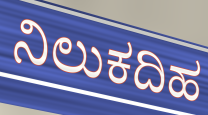
ನಿಲುಕದಿಹ